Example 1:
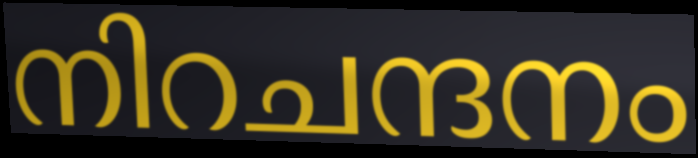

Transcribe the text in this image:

നിറചന്ദനം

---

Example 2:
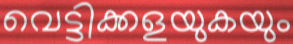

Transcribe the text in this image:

വെട്ടിക്കളയുകയും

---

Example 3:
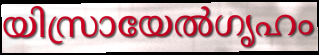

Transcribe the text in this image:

യിസ്രായേൽഗൃഹം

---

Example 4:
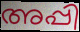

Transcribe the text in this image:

അപ്പി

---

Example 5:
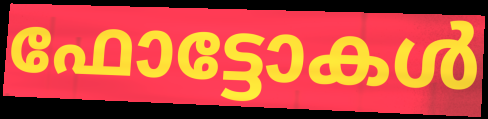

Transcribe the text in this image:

ഫോട്ടോകൾ